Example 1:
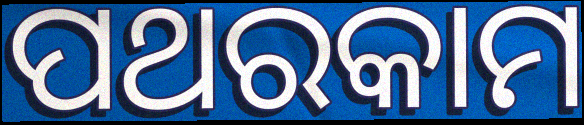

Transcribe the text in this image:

ପଥରକାମ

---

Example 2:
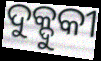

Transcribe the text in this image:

ଦୁକ୍ଦୁକୀ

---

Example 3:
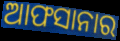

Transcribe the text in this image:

ଆଫସାନାର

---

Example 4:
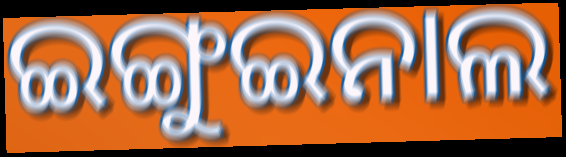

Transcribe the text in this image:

ଇଙ୍ଗୁଇନାଲ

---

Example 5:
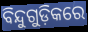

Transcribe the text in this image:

ବିନ୍ଦୁଗୁଡ଼ିକରେ